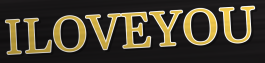
ILOVEYOU